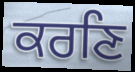
ਕਰਣਿ